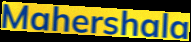
Mahershala